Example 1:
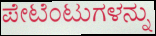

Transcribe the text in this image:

ಪೇಟೆಂಟುಗಳನ್ನು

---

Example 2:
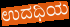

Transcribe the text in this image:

ಉದಧಿಯ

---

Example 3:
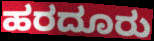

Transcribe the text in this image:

ಹರದೂರು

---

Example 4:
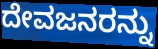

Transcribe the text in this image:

ದೇವಜನರನ್ನು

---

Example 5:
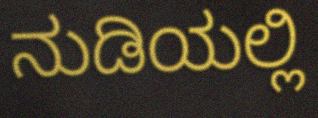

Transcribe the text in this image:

ನುಡಿಯಲ್ಲಿ